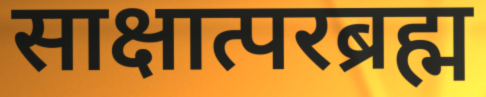
साक्षात्परब्रह्म